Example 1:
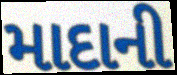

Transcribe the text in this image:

માદાની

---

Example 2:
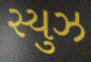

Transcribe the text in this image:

સ્યુઝ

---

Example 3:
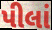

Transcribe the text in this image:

પીલાં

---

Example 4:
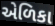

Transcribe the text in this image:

એળિકા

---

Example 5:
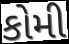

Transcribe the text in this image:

કોમી